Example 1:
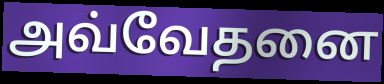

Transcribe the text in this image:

அவ்வேதனை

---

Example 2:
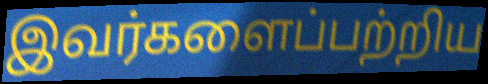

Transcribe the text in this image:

இவர்களைப்பற்றிய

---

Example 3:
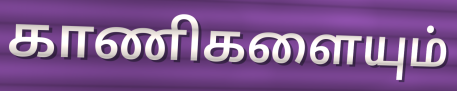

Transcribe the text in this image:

காணிகளையும்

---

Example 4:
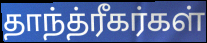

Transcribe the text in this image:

தாந்த்ரீகர்கள்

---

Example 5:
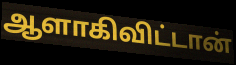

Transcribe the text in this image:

ஆளாகிவிட்டான்